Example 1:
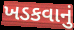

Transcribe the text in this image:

ખડકવાનું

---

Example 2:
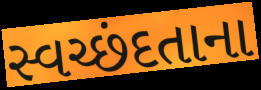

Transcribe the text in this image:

સ્વચ્છંદતાના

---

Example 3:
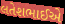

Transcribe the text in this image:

લતેશભાઈએ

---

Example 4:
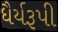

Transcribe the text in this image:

ધૈર્યરૂપી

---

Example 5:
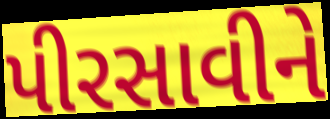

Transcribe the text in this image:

પીરસાવીને